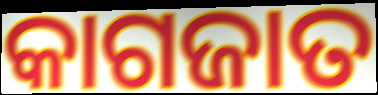
କାଗଜାତ